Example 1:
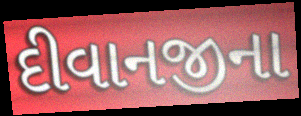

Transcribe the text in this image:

દીવાનજીના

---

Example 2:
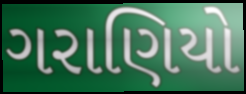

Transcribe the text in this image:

ગરાણિયો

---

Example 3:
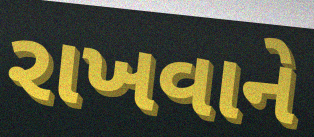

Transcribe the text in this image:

રાખવાને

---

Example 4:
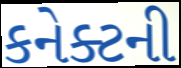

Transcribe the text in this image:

કનેક્ટની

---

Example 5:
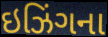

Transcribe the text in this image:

ઇઝિંગના